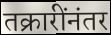
तक्रारींनंतर